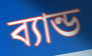
ব্যান্ড